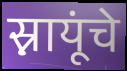
स्नायूंचे